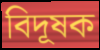
বিদূষক